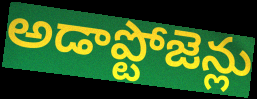
అడాప్టోజెన్లు